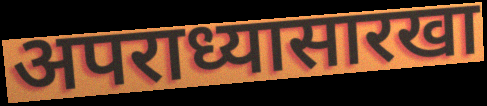
अपराध्यासारखा